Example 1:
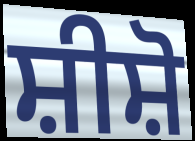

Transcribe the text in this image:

ਸ਼ੀਸ਼ੋ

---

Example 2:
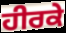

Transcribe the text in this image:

ਹੀਰਕੇ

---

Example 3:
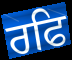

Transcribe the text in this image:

ਰਫਿ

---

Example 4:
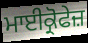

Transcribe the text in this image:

ਮਾਈਕ੍ਰੋਫੇਜ਼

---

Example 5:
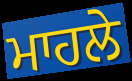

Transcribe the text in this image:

ਮਾਹਲੇ